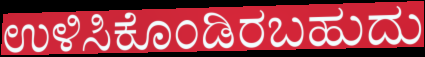
ಉಳಿಸಿಕೊಂಡಿರಬಹುದು